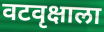
वटवृक्षाला